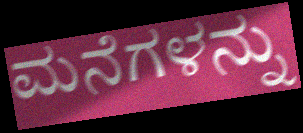
ಮನೆಗಳನ್ನು